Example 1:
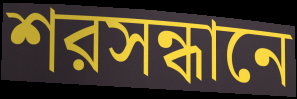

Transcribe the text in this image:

শরসন্ধানে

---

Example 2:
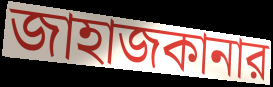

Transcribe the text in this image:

জাহাজকানার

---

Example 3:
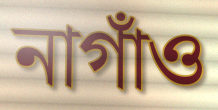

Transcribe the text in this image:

নাগাঁও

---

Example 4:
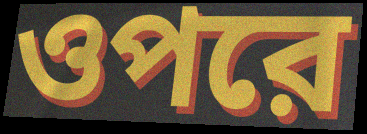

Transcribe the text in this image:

ওপরে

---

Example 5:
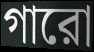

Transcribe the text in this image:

গারো